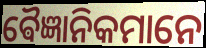
ଵୈଜ୍ଞାନିକମାନେ